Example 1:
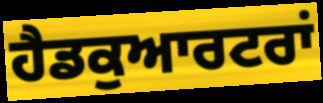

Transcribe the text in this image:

ਹੈਡਕੁਆਰਟਰਾਂ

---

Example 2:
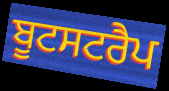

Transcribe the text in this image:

ਬੂਟਸਟਰੈਪ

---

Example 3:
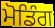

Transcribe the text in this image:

ਮੋਡਿੰਗ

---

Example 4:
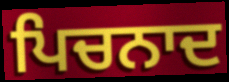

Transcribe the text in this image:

ਪਿਚਨਾਦ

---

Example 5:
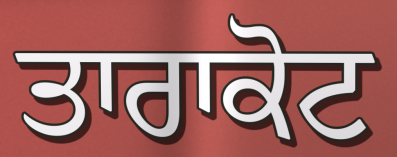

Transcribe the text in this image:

ਤਾਰਾਕੋਟ